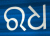
ରଧ